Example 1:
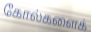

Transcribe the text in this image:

கோல்களைக்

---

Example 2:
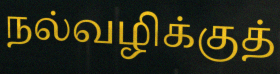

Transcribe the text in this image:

நல்வழிக்குத்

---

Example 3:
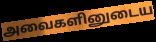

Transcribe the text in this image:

அவைகளினுடைய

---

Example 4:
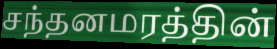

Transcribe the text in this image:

சந்தனமரத்தின்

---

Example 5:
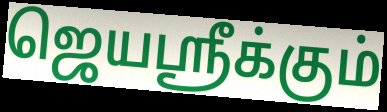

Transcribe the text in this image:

ஜெயஸ்ரீக்கும்